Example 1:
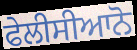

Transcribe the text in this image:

ਫੇਲੀਸੀਆਨੋ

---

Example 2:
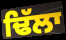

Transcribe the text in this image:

ਢਿੱਲਾ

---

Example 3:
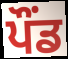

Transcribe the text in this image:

ਪੌਂਡ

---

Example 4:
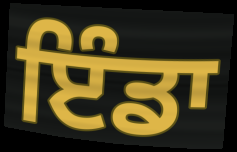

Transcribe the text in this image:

ਇੰਡਾ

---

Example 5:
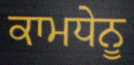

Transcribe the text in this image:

ਕਾਮਧੇਨੂ